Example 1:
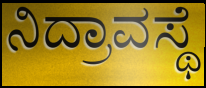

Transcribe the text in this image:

ನಿದ್ರಾವಸ್ಥೆ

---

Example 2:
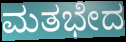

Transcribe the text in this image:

ಮತಭೇದ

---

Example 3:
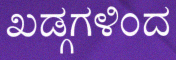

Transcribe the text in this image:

ಖಡ್ಗಗಳಿಂದ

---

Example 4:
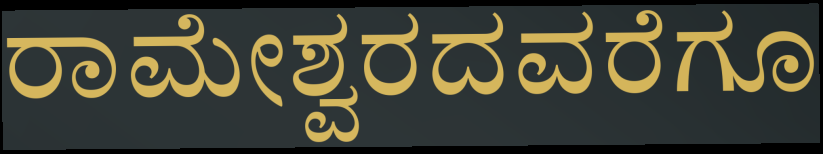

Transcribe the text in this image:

ರಾಮೇಶ್ವರದವರೆಗೂ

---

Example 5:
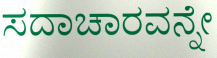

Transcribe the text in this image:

ಸದಾಚಾರವನ್ನೇ